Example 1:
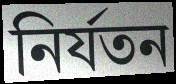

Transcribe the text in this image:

নির্যতন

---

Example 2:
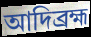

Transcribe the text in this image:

আদিব্রহ্ম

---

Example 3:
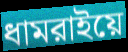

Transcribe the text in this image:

ধামরাইয়ে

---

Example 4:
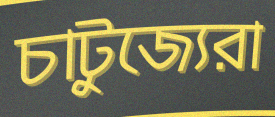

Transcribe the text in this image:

চাটুজ্যেরা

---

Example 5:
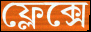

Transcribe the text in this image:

ফ্লেক্সে